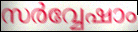
സർവ്വേഷാം